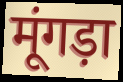
मूंगड़ा